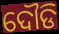
ଦୌଡି